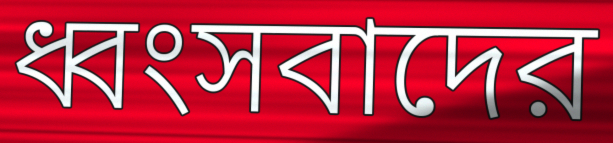
ধ্বংসবাদের